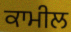
ਕਾਮੀਲ